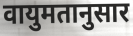
वायुमतानुसार